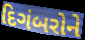
દિગંબરોને